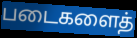
படைகளைத்